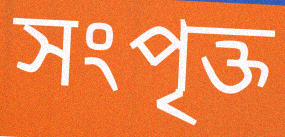
সংপৃক্ত